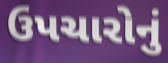
ઉપચારોનું